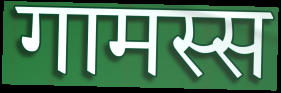
गामस्स